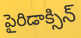
పైరిడాక్సిన్